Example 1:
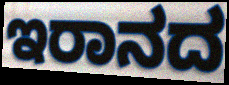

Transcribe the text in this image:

ಇರಾನದ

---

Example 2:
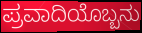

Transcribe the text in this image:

ಪ್ರವಾದಿಯೊಬ್ಬನು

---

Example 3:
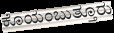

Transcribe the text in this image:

ಕೊಯಂಬುತ್ತೂರು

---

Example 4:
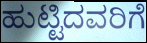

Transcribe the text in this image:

ಹುಟ್ಟಿದವರಿಗೆ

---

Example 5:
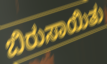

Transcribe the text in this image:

ಬಿರುಸಾಯಿತು